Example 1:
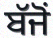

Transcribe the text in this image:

ਬੱਜੋਂ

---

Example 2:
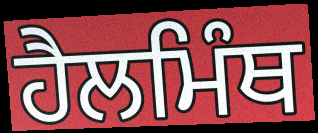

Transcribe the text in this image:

ਹੈਲਮਿੰਥ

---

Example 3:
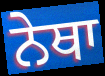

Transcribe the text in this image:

ਨੇਥਾ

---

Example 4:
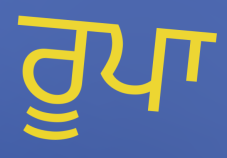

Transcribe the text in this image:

ਰੂਪਾ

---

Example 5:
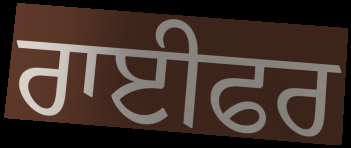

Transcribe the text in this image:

ਰਾਈਫਰ